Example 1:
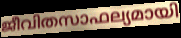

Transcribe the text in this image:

ജീവിതസാഫല്യമായി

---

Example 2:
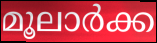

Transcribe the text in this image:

മൂലാർക്ക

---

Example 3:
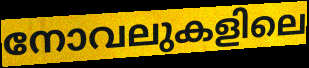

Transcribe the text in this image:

നോവലുകളിലെ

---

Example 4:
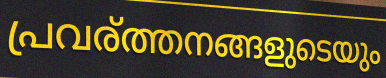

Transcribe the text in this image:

പ്രവര്ത്തനങ്ങളുടെയും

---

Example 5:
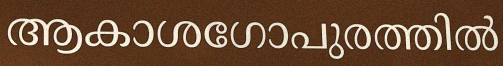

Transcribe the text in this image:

ആകാശഗോപുരത്തിൽ